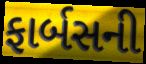
ફાર્બસની